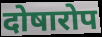
दोषारोप